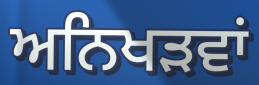
ਅਨਿਖੜਵਾਂ